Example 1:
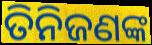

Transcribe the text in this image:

ତିନିଜଣଙ୍କ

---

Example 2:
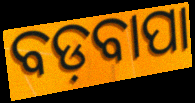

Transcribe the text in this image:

ବଡ଼ବାପା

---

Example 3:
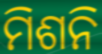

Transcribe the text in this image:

ମିଶନି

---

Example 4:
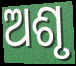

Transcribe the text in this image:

ଅଶୃ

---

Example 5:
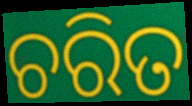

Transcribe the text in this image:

ଚରିତ